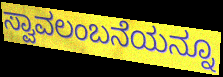
ಸ್ವಾವಲಂಬನೆಯನ್ನೂ